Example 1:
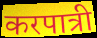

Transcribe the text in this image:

करपात्री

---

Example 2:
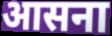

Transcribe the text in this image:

आसना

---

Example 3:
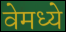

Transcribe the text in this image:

वेमध्ये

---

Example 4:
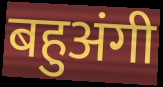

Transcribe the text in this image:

बहुअंगी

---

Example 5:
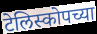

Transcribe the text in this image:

टेलिस्कोपच्या